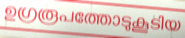
ഉഗ്രരൂപത്തോടുകൂടിയ